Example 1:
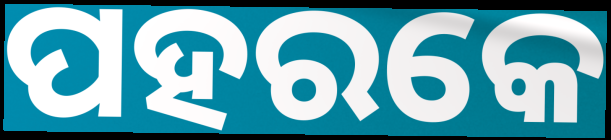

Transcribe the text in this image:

ପହରକେ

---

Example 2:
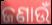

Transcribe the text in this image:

ଜଣାଉଁ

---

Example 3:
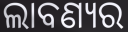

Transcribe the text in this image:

ଲାବଣ୍ୟର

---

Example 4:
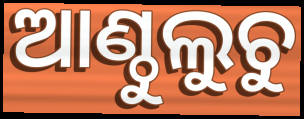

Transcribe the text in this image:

ଆଣ୍ଠୁଲୁଚୁ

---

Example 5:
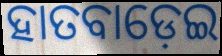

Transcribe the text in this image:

ହାତବାଡ଼େଇ